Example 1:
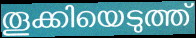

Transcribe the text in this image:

തൂക്കിയെടുത്ത്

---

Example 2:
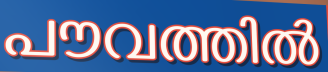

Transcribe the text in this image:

പൗവത്തിൽ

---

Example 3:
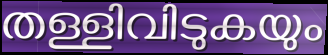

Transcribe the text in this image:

തള്ളിവിടുകയും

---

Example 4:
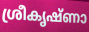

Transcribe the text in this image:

ശ്രീകൃഷ്ണാ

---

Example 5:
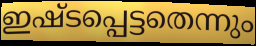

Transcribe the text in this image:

ഇഷ്ടപ്പെട്ടതെന്നും